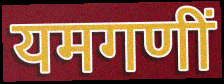
यमगणीं